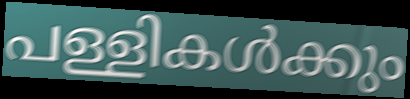
പള്ളികൾക്കും